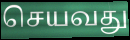
செயவது